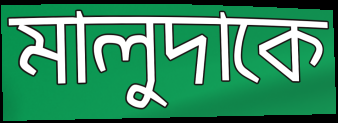
মালুদাকে